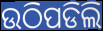
ଉଠିପଡିଲି